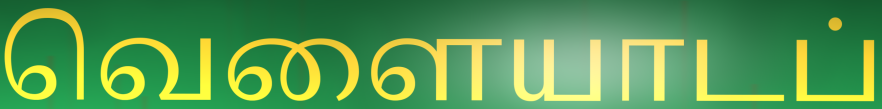
வெளையாடப்